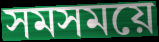
সমসময়ে